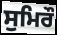
ਸੁਮਿਰੌ